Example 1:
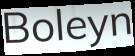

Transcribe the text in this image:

Boleyn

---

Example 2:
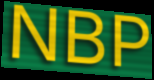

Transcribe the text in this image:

NBP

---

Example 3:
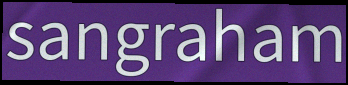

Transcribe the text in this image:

sangraham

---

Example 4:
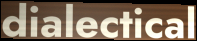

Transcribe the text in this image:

dialectical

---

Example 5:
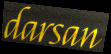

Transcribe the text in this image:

darsan